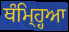
ਥੰਮ੍ਹ੍ਹਿਆ